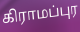
கிராமப்புர